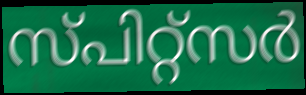
സ്പിറ്റ്സർ